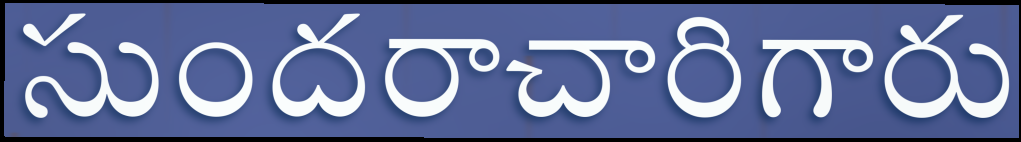
సుందరాచారిగారు